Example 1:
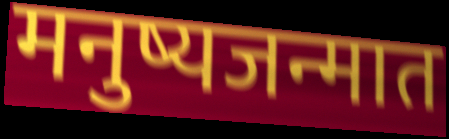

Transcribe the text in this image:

मनुष्यजन्मात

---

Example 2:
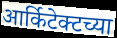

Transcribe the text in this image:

आर्किटेक्टच्या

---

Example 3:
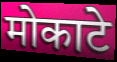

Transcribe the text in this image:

मोकाटे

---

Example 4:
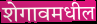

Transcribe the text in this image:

शेगावमधील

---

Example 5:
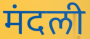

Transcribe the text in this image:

मंदली